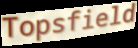
Topsfield